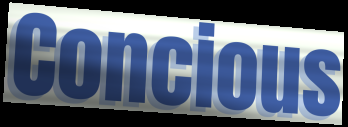
Concious